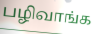
பழிவாங்க